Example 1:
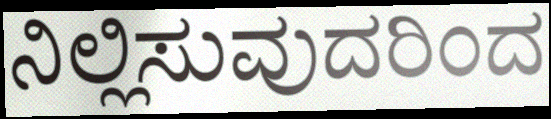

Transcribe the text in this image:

ನಿಲ್ಲಿಸುವುದರಿಂದ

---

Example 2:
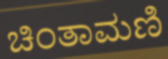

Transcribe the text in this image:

ಚಿಂತಾಮಣಿ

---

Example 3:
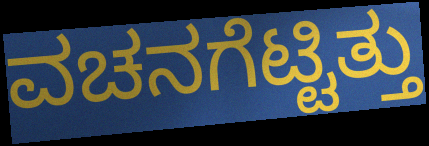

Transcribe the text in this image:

ವಚನಗೆಟ್ಟಿತ್ತು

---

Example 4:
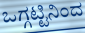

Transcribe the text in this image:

ಒಗ್ಗಟ್ಟಿನಿಂದ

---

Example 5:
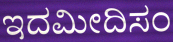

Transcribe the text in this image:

ಇದಮೀದಿಸಂ